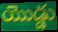
యొడ్డు